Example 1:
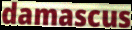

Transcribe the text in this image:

damascus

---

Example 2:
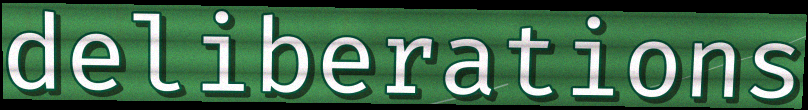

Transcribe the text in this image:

deliberations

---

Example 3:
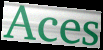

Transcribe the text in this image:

Aces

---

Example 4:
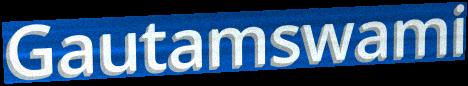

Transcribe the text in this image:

Gautamswami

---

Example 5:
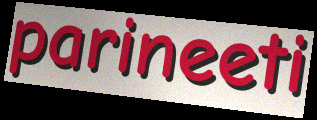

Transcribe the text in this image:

parineeti